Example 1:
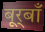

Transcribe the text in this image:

बूर्‌बाँ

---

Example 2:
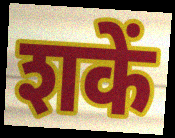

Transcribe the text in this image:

शकें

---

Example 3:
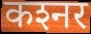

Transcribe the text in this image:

कश्‍नर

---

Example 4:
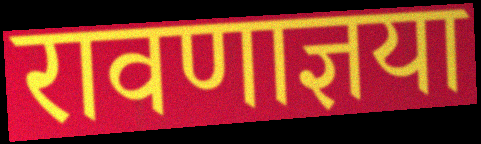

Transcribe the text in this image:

रावणाज्ञया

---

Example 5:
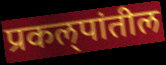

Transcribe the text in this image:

प्रकल्पांतील